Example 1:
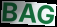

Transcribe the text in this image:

BAG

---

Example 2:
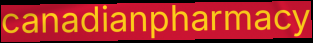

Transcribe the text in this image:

canadianpharmacy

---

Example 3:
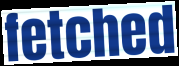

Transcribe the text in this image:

fetched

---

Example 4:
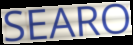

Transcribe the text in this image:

SEARO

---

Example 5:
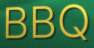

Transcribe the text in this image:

BBQ